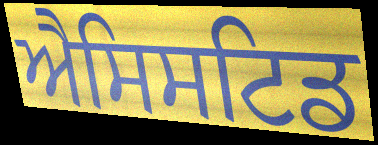
ਐਸਿਸਟਿਡ